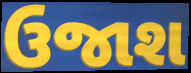
ઉજાશ